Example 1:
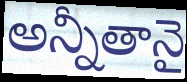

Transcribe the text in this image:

అన్నీతానై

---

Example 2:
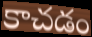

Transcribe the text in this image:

కాచడం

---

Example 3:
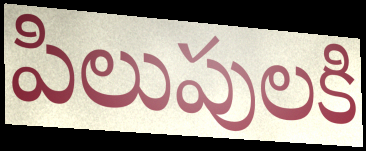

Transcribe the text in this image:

పిలుపులకి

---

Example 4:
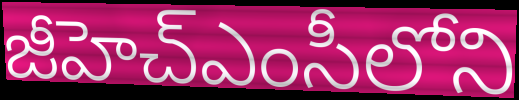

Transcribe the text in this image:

జీహెచ్ఎంసీలోని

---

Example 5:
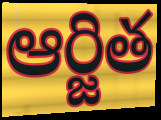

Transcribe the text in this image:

ఆర్జిత